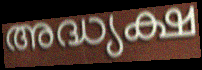
അദ്ധ്യക്ഷ